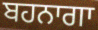
ਬਹਨਾਗਾ